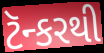
ટૅન્કરથી